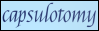
capsulotomy